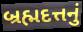
બ્રહ્મદત્તનું